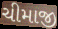
ચીમાજી